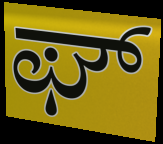
ಘ್